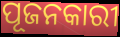
ପୂଜନକାରୀ